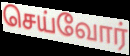
செய்வோர்